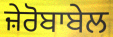
ਜ਼ੇਰੋਬਾਬੇਲ